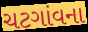
ચટગાંવના